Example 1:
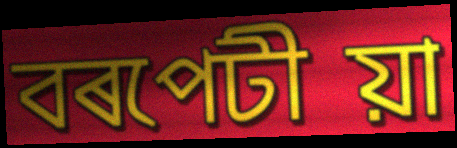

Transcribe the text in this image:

বৰপেটীয়া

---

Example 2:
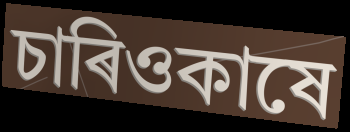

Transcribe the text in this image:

চাৰিওকাষে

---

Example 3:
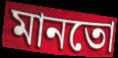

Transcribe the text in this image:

মানতো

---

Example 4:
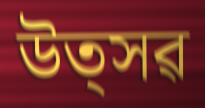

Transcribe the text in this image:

উত্সৱ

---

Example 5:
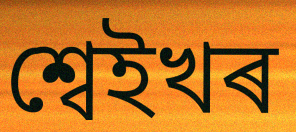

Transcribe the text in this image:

শ্বেইখৰ